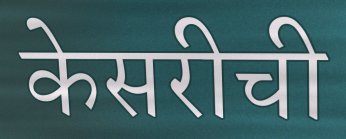
केसरीची